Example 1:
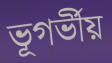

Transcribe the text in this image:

ভূগর্ভীয়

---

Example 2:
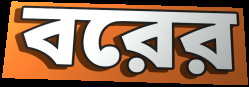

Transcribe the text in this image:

বরের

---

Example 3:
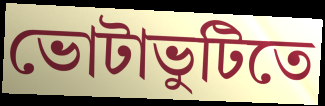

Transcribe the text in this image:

ভোটাভুটিতে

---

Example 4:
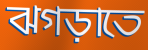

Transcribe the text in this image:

ঝগড়াতে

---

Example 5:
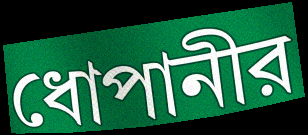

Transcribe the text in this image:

ধোপানীর